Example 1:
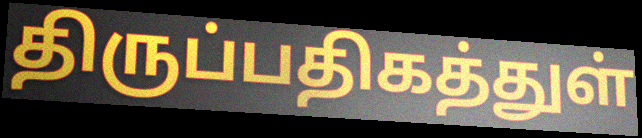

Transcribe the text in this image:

திருப்பதிகத்துள்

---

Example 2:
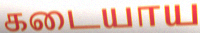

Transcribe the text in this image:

கடையாய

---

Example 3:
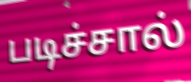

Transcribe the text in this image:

படிச்சால்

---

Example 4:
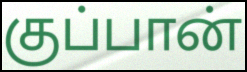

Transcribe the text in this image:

குப்பான்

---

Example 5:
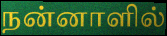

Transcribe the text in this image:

நன்னாளில்